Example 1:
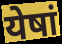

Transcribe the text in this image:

येषां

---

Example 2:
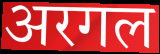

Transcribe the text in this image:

अरगल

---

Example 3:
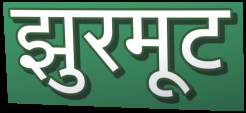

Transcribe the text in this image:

झुरमूट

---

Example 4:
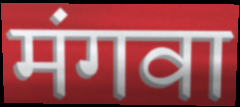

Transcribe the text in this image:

मंगवा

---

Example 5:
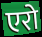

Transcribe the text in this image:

एरो